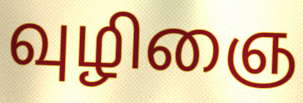
வுழிஞை